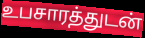
உபசாரத்துடன்